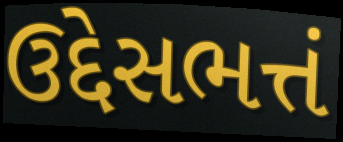
ઉદ્દેસભત્તં